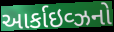
આર્કાઇવ્ઝનો